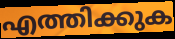
എത്തിക്കുക